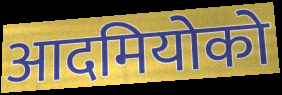
आदमियोको